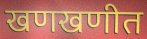
खणखणीत